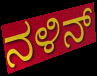
ನಳಿನ್